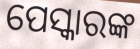
ପେସ୍କାରଙ୍କ